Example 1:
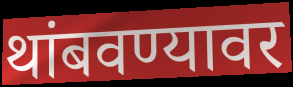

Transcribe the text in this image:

थांबवण्यावर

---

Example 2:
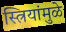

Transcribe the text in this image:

स्त्रियांमुळे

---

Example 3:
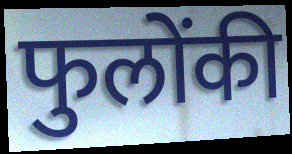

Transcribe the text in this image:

फुलोंकी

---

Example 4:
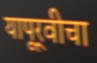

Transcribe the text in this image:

यापूर्वीचा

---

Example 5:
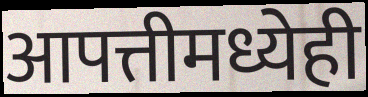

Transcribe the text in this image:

आपत्तीमध्येही